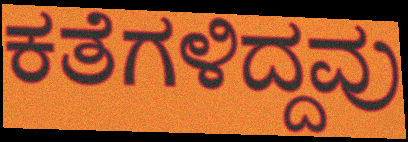
ಕತೆಗಳಿದ್ದವು